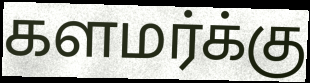
களமர்க்கு